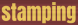
stamping